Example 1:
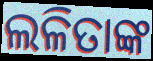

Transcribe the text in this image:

ଲଳିତାଙ୍କ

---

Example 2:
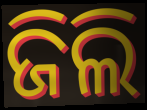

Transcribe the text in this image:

ଜିଲି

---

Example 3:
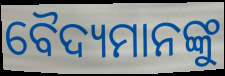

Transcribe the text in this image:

ବୈଦ୍ୟମାନଙ୍କୁ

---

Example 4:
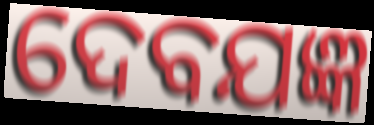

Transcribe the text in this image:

ଦେବଯଜ୍ଞ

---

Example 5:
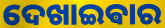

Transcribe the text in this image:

ଦେଖାଇଵାର